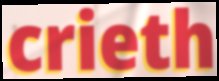
crieth